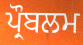
ਪ੍ਰੌਬਲਮ